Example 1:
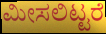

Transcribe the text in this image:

ಮೀಸಲಿಟ್ಟರೆ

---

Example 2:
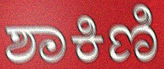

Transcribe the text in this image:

ಶಾಕಿಣಿ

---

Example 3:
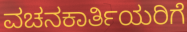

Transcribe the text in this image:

ವಚನಕಾರ್ತಿಯರಿಗೆ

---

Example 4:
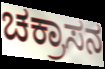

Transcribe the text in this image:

ಚಕ್ರಾಸನ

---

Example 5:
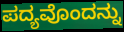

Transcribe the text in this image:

ಪದ್ಯವೊಂದನ್ನು